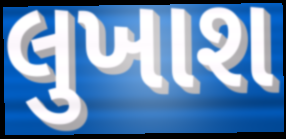
લુખાશ